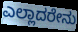
ಎಲ್ಲಾದರೇನು